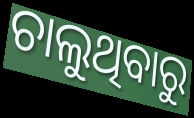
ଚାଲୁଥିବାରୁ